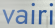
vairi